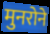
मुनरोने